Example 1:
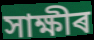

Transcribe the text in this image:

সাক্ষীৰ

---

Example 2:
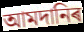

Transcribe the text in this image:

আমদানিৰ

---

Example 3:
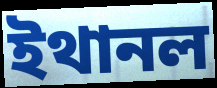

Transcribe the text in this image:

ইথানল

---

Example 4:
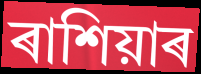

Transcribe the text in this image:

ৰাশিয়াৰ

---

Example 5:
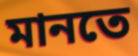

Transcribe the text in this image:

মানতে